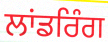
ਲਾਂਡਰਿੰਗ